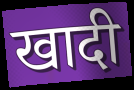
खादी